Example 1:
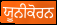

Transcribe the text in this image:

ਯੂਨੀਕੋਰਨ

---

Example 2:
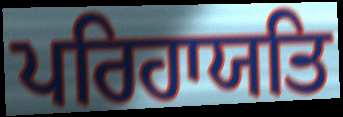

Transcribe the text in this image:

ਪਰਿਹਾਯਤਿ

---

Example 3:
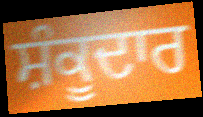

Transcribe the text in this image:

ਸ਼ੰਕੂਦਾਰ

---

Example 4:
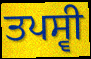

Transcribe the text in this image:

ਤਪਸ੍ਵੀ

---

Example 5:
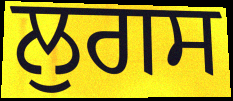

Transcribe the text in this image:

ਲੁਗਸ